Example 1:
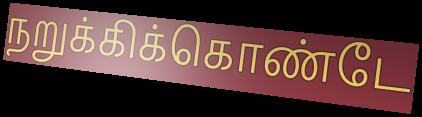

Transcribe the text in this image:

நறுக்கிக்கொண்டே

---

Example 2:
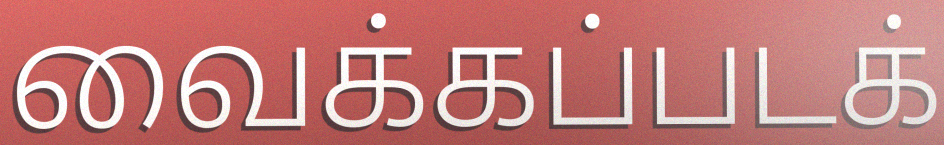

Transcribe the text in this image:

வைக்கப்படக்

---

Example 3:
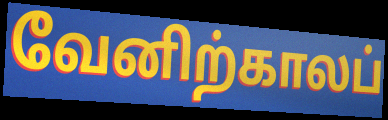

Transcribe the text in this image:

வேனிற்காலப்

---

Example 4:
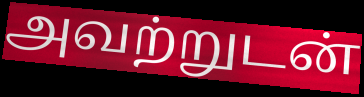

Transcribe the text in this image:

அவற்றுடன்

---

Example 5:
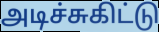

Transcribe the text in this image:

அடிச்சுகிட்டு